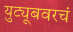
युट्यूबवरचं